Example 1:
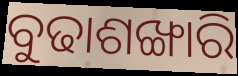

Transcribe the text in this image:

ବୁଢାଶଙ୍ଖାରି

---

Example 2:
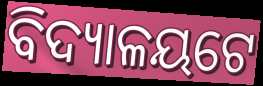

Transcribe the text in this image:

ବିଦ୍ୟାଳୟଟେ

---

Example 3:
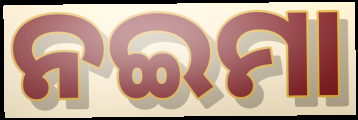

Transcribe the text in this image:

ନଇମା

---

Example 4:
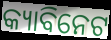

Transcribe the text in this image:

କ୍ୟାବିନେଟ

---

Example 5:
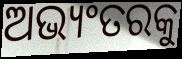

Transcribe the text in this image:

ଅଭ୍ୟଂତରକୁ